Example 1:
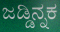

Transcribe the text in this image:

ಜಡ್ಡಿನ್ನಕ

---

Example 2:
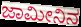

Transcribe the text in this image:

ಜಾಮೀನಿನ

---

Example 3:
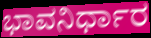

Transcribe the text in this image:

ಭಾವನಿರ್ಧಾರ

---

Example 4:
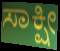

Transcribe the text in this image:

ಸಾಕ್ಷೀ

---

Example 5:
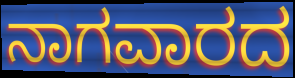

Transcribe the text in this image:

ನಾಗವಾರದ